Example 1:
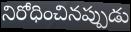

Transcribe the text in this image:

నిరోధించినప్పుడు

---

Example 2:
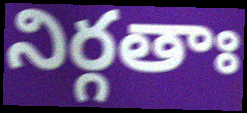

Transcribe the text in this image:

నిర్గతాః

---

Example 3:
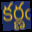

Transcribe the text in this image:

కర్ణఁ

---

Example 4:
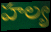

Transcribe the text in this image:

హల్య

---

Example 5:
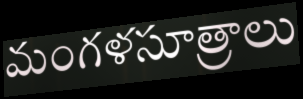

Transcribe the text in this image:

మంగళసూత్రాలు